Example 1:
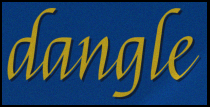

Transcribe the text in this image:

dangle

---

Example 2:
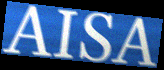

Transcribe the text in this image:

AISA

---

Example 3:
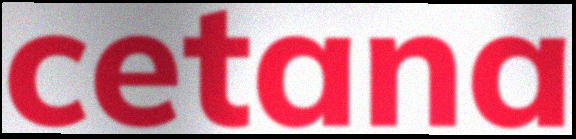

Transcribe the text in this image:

cetana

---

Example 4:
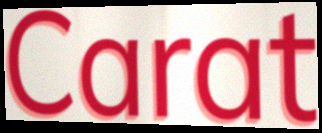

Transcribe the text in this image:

Carat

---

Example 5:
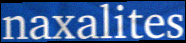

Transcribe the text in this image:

naxalites